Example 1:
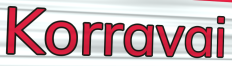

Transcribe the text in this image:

Korravai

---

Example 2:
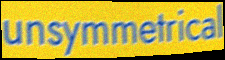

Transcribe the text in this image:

unsymmetrical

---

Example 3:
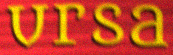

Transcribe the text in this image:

ursa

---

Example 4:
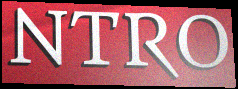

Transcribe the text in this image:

NTRO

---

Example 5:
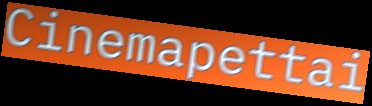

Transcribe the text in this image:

Cinemapettai